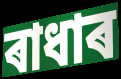
ৰাধাৰ